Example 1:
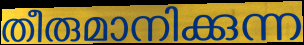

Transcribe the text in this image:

തീരുമാനിക്കുന്ന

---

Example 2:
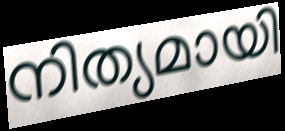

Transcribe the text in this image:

നിത്യമായി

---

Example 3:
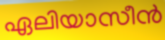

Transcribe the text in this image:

ഏലിയാസീൻ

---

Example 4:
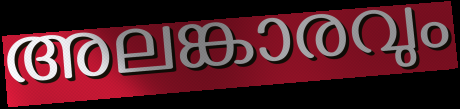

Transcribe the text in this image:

അലങ്കാരവും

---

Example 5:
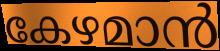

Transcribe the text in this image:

കേഴമാൻ